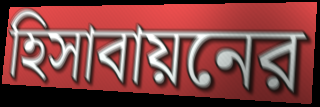
হিসাবায়নের